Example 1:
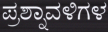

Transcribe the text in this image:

ಪ್ರಶ್ನಾವಳಿಗಳ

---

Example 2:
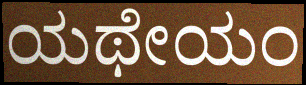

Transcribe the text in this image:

ಯಥೇಯಂ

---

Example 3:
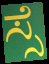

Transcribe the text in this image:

ಸ್ಸೆ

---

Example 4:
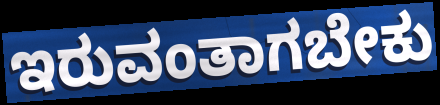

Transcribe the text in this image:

ಇರುವಂತಾಗಬೇಕು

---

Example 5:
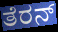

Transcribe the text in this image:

ತೆರನ್